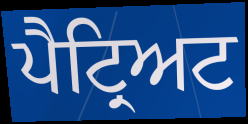
ਪੈਟ੍ਰਿਅਟ